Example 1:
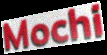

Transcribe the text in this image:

Mochi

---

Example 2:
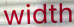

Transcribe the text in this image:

width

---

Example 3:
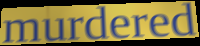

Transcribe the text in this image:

murdered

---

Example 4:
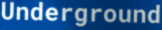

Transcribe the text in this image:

Underground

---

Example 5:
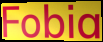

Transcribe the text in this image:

Fobia